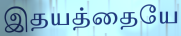
இதயத்தையே